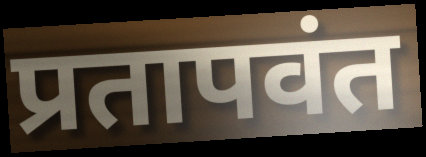
प्रतापवंत